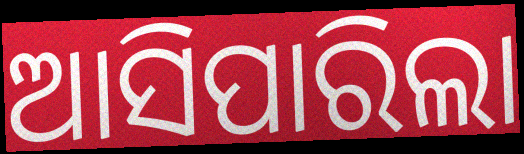
ଆସିପାରିଲା